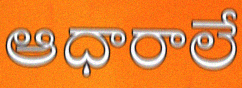
ఆధారాలే